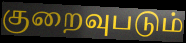
குறைவுபடும்